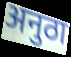
अनुठा